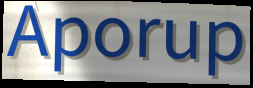
Aporup